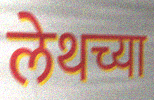
लेथच्या